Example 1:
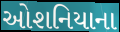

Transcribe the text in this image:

ઓશનિયાના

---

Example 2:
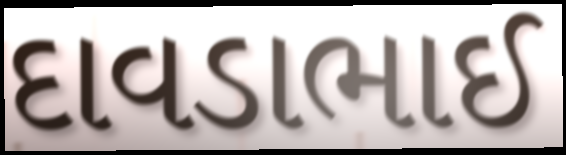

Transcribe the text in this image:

દાવડાભાઈ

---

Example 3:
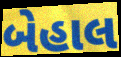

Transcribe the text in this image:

બેહાલ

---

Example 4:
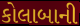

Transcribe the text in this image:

કોલાબાની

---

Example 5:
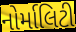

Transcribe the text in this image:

નોર્માલિટી